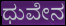
ಧುವೇನ